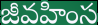
జీవహింస